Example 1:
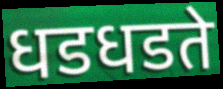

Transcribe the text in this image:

धडधडते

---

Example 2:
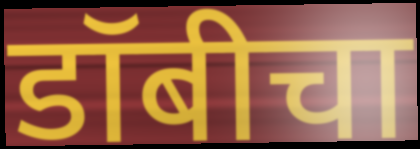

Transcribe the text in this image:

डॉबीचा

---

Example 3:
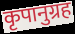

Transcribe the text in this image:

कृपानुग्रह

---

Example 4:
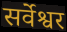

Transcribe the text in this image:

सर्वेश्वर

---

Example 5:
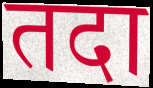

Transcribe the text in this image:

तदा